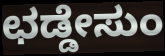
ಛಡ್ಡೇಸುಂ